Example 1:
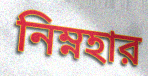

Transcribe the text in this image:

নিম্নহার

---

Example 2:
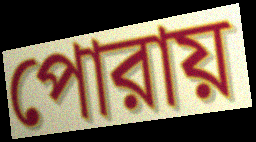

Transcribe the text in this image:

পোরায়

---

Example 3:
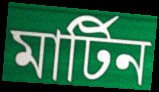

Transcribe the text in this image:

মার্টিন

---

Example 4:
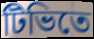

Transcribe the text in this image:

টিভিতে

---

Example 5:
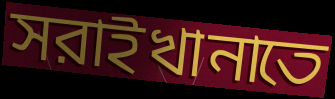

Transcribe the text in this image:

সরাইখানাতে